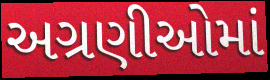
અગ્રણીઓમાં